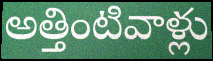
అత్తింటివాళ్లు